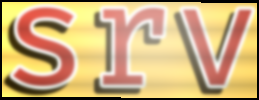
srv